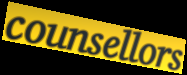
counsellors